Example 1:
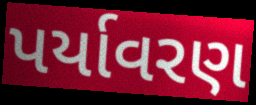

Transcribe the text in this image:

પર્યાવરણ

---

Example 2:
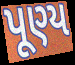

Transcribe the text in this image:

પૂણ્ય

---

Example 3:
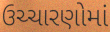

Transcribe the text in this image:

ઉચ્ચારણોમાં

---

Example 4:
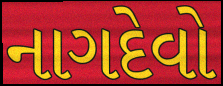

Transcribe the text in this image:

નાગદેવો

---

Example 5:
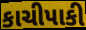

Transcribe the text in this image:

કાચીપાકી